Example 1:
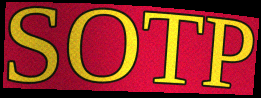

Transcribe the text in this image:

SOTP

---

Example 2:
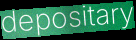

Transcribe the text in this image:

depositary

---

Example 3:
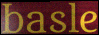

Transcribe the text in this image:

basle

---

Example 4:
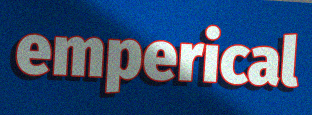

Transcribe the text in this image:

emperical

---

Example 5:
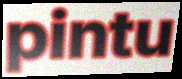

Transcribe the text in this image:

pintu